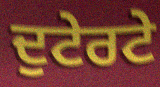
ਦੁਟੇਰਟੇ